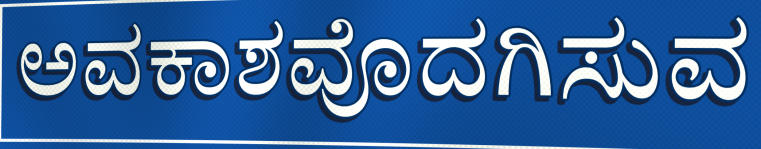
ಅವಕಾಶವೊದಗಿಸುವ